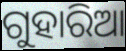
ଗୁହାରିଆ